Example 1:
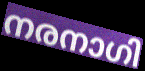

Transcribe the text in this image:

നരനാഗി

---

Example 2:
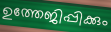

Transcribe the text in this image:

ഉത്തേജിപ്പിക്കും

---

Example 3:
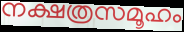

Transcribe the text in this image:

നക്ഷത്രസമൂഹം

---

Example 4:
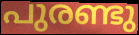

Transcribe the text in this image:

പുരണ്ടു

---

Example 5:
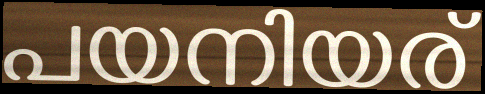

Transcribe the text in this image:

പയനിയര്